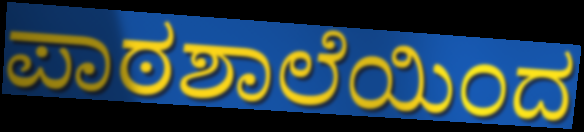
ಪಾಠಶಾಲೆಯಿಂದ